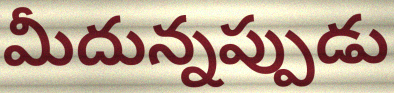
మీదున్నప్పుడు